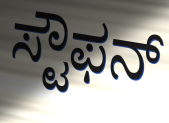
ಸ್ಟೌಫನ್